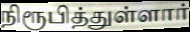
நிரூபித்துள்ளார்